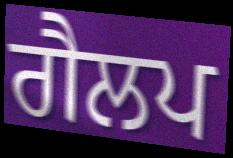
ਗੈਲਪ